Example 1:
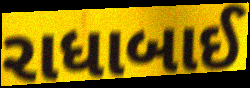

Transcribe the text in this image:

રાધાબાઈ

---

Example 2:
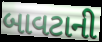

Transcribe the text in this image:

બાવટાની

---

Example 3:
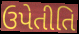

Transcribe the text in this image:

ઉપેતીતિ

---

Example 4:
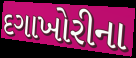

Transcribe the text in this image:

દગાખોરીના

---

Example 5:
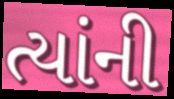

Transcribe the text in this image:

ત્યાંની